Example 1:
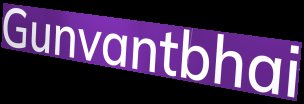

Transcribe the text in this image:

Gunvantbhai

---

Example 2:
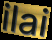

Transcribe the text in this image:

ilai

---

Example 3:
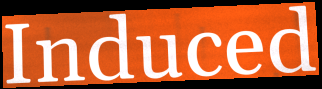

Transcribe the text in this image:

Induced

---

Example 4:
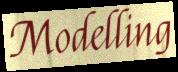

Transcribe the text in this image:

Modelling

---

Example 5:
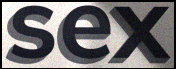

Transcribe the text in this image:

sex